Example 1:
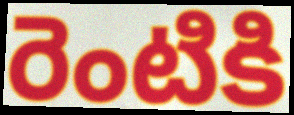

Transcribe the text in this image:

రెంటికి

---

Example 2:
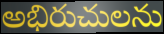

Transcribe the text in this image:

అభిరుచులను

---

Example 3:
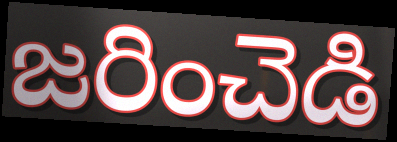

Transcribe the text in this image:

జరించెడి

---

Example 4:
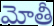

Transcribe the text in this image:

మోతీ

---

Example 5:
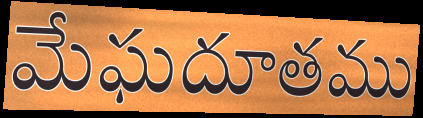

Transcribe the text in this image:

మేఘదూతము